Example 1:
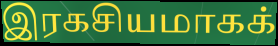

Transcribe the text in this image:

இரகசியமாகக்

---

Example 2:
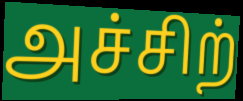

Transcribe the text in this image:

அச்சிற்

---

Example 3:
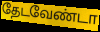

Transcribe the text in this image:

தேடவேண்டா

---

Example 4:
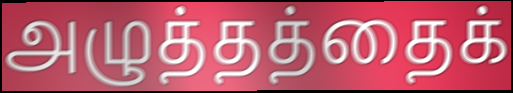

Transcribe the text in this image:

அழுத்தத்தைக்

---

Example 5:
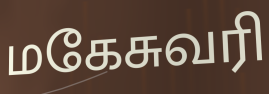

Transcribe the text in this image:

மகேசுவரி